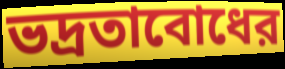
ভদ্রতাবোধের